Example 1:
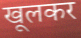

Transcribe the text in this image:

खूलकर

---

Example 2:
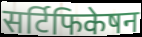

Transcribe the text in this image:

सर्टिफिकेषन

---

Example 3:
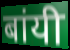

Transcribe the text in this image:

बांयी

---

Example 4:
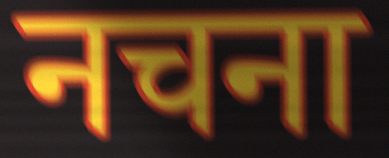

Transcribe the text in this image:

नचना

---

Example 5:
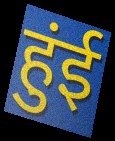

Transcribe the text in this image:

हुंई